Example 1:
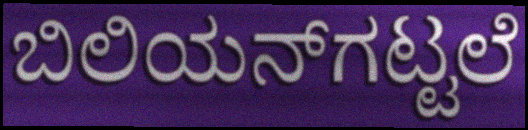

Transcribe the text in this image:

ಬಿಲಿಯನ್‌ಗಟ್ಟಲೆ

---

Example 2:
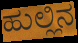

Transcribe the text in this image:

ಹುಲ್ಲಿನ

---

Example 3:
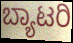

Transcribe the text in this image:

ಬ್ಯಾಟರಿ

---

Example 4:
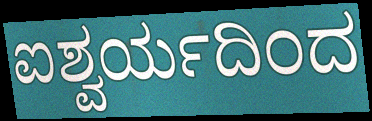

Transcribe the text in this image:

ಐಶ್ವರ್ಯದಿಂದ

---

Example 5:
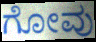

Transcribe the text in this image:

ಗೋವು